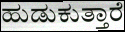
ಹುಡುಕುತ್ತಾರೆ